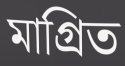
মাগ্রিত